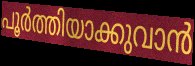
പൂർത്തിയാക്കുവാൻ